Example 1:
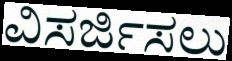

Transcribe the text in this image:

ವಿಸರ್ಜಿಸಲು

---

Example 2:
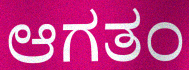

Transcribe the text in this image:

ಆಗತಂ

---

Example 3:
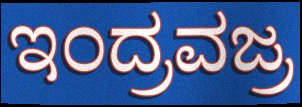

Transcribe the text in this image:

ಇಂದ್ರವಜ್ರ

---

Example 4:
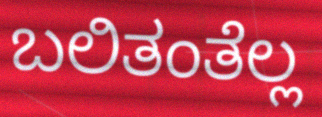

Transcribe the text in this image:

ಬಲಿತಂತೆಲ್ಲ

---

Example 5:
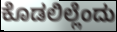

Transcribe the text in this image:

ಕೊಡಲಿಲ್ಲೆಂದು